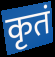
कृतं